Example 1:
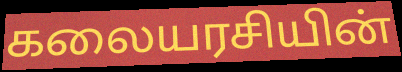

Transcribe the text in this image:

கலையரசியின்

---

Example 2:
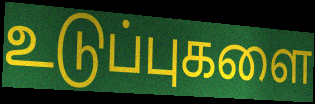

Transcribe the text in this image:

உடுப்புகளை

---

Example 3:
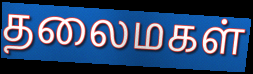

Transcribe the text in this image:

தலைமகள்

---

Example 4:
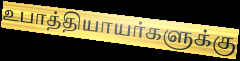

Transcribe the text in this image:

உபாத்தியாயர்களுக்கு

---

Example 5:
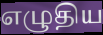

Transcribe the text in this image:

எழுதிய